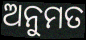
ଅନୁମତ